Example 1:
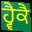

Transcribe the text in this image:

ਹ੍ਵੈਕੈ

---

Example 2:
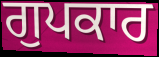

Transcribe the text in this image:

ਗੁਪਕਾਰ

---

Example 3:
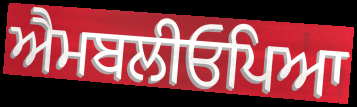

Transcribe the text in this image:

ਐਮਬਲੀਓਪਿਆ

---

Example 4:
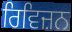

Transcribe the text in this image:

ਰਿਵਿਜ਼ਨ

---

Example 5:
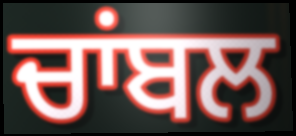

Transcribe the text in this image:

ਚਾਂਬਲ